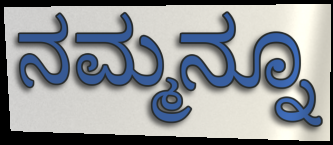
ನಮ್ಮನ್ನೂ